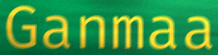
Ganmaa